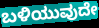
ಬಳಿಯುವುದೇ